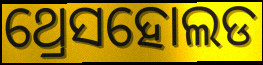
ଥ୍ରେସହୋଲଡ